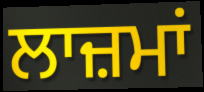
ਲਾਜ਼ਮਾਂ